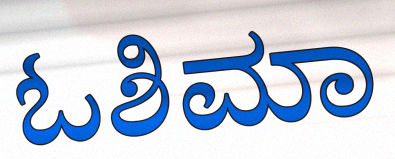
ಓಶಿಮಾ